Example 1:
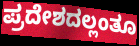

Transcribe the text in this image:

ಪ್ರದೇಶದಲ್ಲಂತೂ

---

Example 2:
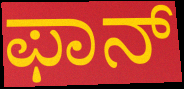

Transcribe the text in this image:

ಫಾನ್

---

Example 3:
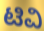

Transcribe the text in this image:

ಟಿವಿ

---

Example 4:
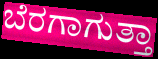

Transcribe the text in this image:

ಬೆರಗಾಗುತ್ತಾ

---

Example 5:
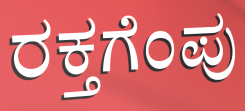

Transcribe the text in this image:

ರಕ್ತಗೆಂಪು